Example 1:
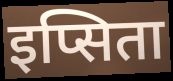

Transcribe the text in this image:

इप्सिता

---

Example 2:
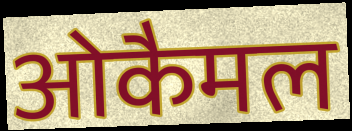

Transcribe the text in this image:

ओकैमल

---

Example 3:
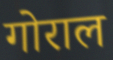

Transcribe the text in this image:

गोराल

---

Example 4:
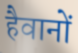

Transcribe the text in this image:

हैवानों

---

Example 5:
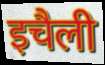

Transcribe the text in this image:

इचैली